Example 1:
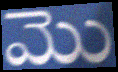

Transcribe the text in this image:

మొ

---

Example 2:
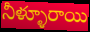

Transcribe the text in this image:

నీళ్ళూరాయి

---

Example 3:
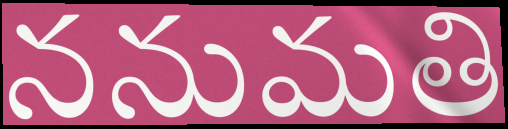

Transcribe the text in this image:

ననుమతి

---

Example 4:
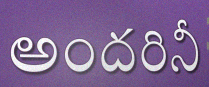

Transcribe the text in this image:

అందరినీ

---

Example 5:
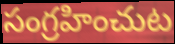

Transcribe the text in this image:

సంగ్రహించుట